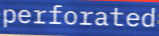
perforated